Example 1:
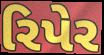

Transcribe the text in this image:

રિપેર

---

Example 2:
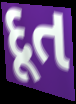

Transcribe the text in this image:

દૂત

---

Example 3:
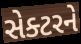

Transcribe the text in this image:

સેક્ટરને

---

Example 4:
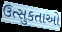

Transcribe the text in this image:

ઉત્સુકતાઓ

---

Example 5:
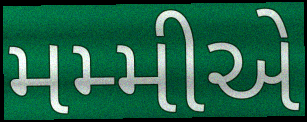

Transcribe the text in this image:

મમ્મીએ